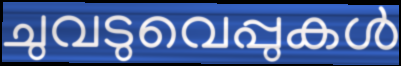
ചുവടുവെപ്പുകൾ